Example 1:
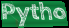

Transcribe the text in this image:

Pytho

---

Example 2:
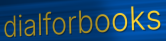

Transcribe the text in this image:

dialforbooks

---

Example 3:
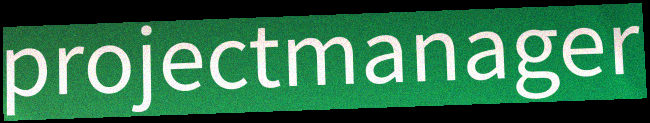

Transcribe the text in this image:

projectmanager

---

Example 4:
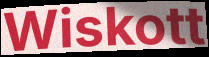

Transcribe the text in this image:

Wiskott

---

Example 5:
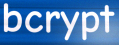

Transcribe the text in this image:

bcrypt